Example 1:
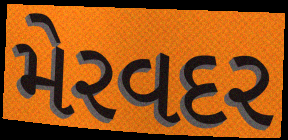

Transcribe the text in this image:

મેરવદર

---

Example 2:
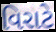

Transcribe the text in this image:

વિરાટે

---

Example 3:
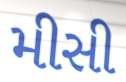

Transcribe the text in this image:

મીસી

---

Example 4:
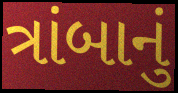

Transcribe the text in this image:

ત્રાંબાનું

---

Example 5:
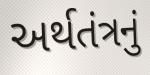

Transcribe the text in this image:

અર્થતંત્રનું